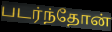
படர்ந்தோன்